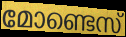
മോണ്ടെസ്